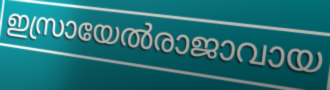
ഇസ്രായേൽരാജാവായ